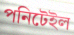
পনিটেইল